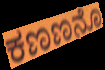
ಕಣಣನೊ